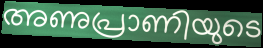
അണുപ്രാണിയുടെ